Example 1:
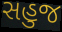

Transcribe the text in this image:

સહુજ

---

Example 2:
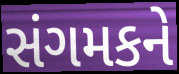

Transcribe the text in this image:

સંગમકને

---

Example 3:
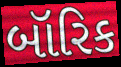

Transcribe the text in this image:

બૉરિક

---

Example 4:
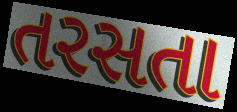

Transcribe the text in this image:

તરસતા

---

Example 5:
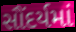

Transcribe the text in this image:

સૌંદર્યમાં